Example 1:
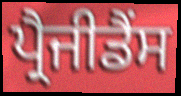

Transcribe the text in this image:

ਪ੍ਰੈਜੀਡੈਂਸ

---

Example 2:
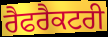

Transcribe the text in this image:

ਰੈਫਰੈਕਟਰੀ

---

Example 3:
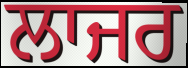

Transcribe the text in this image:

ਲਾਜਰ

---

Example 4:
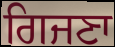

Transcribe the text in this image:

ਗਿਜਣਾ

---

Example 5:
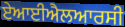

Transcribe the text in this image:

ਏਆਈਐਲਆਰਸੀ